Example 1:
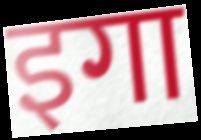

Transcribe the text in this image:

इगा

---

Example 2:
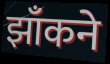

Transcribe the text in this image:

झाँकने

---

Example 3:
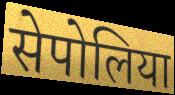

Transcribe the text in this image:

सेपोलिया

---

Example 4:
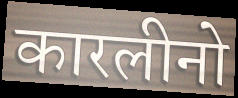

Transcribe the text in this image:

कारलीनो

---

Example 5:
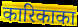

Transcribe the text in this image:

कारिकाका